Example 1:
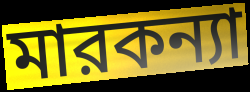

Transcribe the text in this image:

মারকন্যা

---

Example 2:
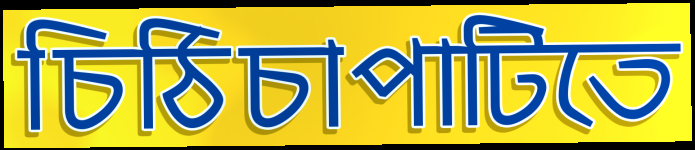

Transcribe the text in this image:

চিঠিচাপাটিতে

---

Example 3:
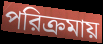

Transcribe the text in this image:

পরিক্রমায়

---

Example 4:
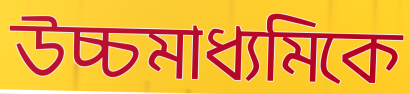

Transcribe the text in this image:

উচ্চমাধ্যমিকে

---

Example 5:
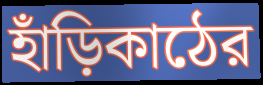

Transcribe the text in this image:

হাঁড়িকাঠের